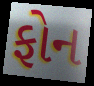
ફોન